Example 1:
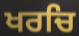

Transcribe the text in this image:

ਖਰਚਿ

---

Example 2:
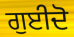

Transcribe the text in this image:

ਗੁਈਦੋ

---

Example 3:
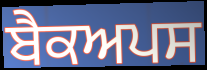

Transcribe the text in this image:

ਬੈਕਅਪਸ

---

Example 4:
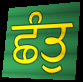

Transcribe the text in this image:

ਛੰਤੁ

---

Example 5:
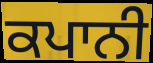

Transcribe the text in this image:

ਕਪਾਨੀ